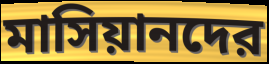
মাসিয়ানদের